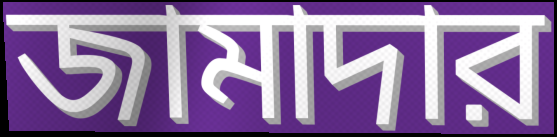
জামাদার